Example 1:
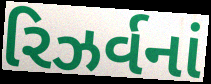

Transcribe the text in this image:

રિઝર્વનાં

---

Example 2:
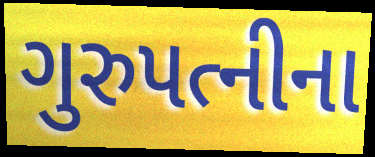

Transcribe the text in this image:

ગુરુપત્નીના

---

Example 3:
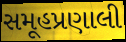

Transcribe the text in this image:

સમૂહપ્રણાલી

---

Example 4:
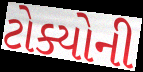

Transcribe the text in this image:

ટોક્યોની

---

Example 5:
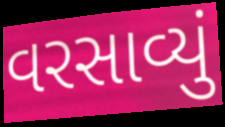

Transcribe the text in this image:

વરસાવ્યું